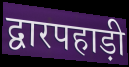
द्वारपहाड़ी